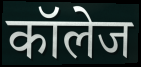
कॉलेज